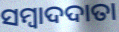
ସମ୍ବାଦଦାତା